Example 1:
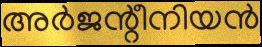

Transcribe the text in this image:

അർജന്റീനിയൻ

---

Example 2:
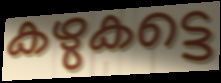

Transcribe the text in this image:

കഴുകട്ടെ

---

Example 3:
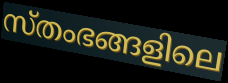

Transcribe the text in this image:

സ്തംഭങ്ങളിലെ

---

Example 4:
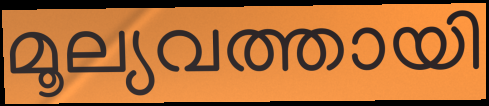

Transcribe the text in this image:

മൂല്യവത്തായി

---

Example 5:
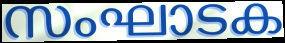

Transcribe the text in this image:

സംഘാടക